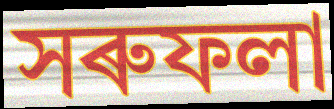
সৰুফলা